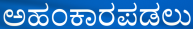
ಅಹಂಕಾರಪಡಲು